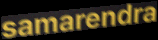
samarendra